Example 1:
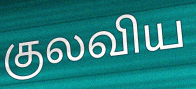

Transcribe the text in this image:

குலவிய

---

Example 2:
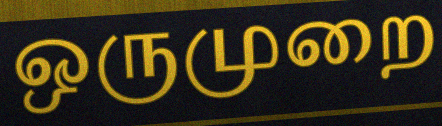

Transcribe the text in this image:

ஒருமுறை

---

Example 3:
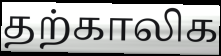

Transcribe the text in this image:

தற்காலிக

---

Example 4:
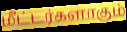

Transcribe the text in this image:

மீட்டர்களாகும்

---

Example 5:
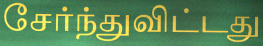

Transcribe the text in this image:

சேர்ந்துவிட்டது